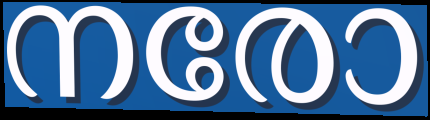
നരോ